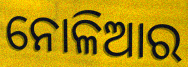
ନୋଳିଆର